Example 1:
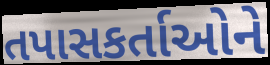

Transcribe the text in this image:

તપાસકર્તાઓને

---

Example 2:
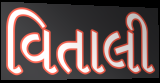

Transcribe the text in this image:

વિતાલી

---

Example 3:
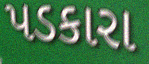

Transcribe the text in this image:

પડકારા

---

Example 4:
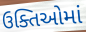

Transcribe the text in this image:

ઉક્તિઓમાં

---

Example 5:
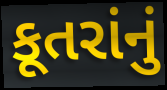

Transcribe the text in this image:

કૂતરાંનું